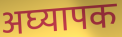
अघ्यापक